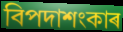
বিপদাশংকাৰ